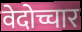
वेदोच्चार